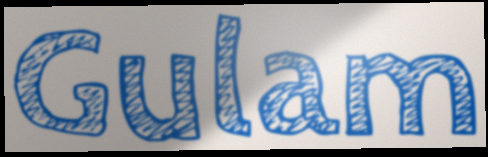
Gulam